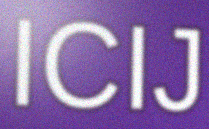
ICIJ